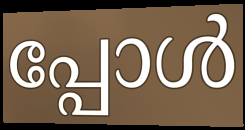
പ്പോൾ